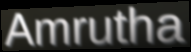
Amrutha